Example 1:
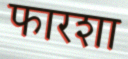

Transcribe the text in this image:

फारशा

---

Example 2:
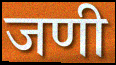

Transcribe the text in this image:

जणी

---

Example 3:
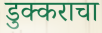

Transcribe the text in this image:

डुक्कराचा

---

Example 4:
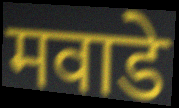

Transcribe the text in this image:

मवाडे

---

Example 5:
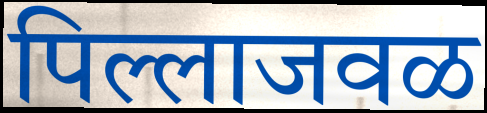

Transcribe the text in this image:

पिल्लाजवळ